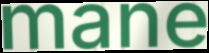
mane